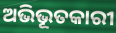
ଅଭିଭୂତକାରୀ